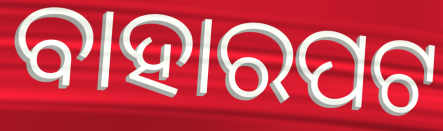
ବାହାରପଟ